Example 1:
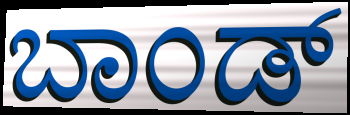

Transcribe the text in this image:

ಬಾಂಡ್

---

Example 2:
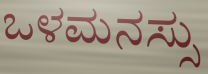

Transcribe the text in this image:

ಒಳಮನಸ್ಸು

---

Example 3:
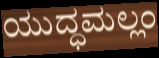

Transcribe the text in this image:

ಯುದ್ಧಮಲ್ಲಂ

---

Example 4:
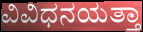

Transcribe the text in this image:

ವಿವಿಧನಯತ್ತಾ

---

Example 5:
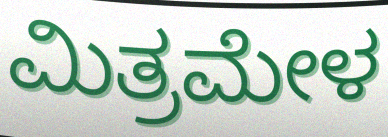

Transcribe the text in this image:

ಮಿತ್ರಮೇಳ